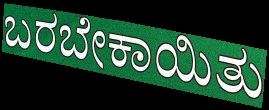
ಬರಬೇಕಾಯಿತು